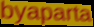
byaparta